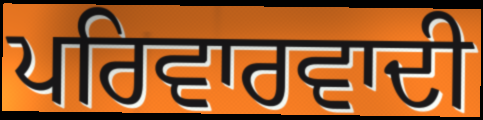
ਪਰਿਵਾਰਵਾਦੀ